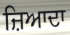
ਜ਼ਿਆਦਾ